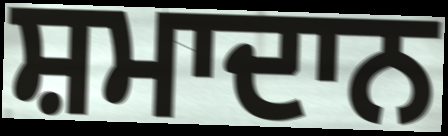
ਸ਼ਮਾਦਾਨ